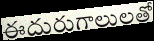
ఈదురుగాలులతో